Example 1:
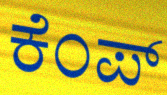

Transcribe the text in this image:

ಕೆಂಪ್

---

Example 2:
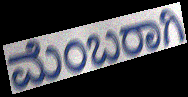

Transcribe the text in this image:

ಮೆಂಬರಾಗಿ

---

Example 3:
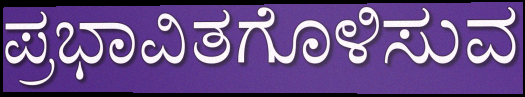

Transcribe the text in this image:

ಪ್ರಭಾವಿತಗೊಳಿಸುವ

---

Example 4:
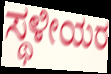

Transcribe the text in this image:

ಸ್ಥಳೀಯರ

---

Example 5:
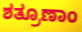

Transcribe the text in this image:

ಶತ್ರೂಣಾಂ